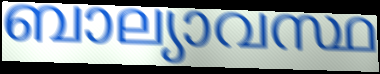
ബാല്യാവസ്ഥ